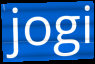
jogi